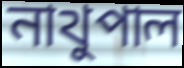
নাথুপাল